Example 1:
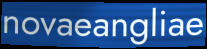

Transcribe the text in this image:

novaeangliae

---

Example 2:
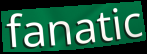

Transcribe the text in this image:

fanatic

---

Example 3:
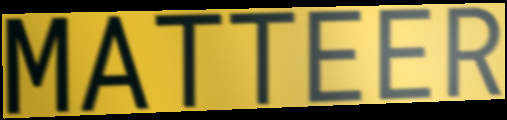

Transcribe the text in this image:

MATTEER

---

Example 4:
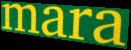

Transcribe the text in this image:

mara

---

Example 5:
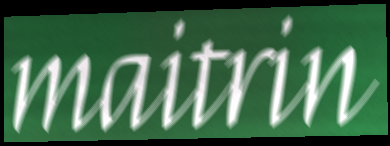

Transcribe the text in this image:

maitrin